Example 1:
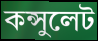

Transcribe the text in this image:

কন্সুলেট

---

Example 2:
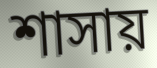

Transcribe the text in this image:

শাসায়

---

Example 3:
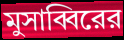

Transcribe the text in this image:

মুসাব্বিরের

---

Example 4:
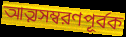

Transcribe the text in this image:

আত্মসম্বরণপূর্বক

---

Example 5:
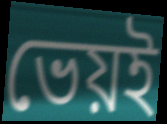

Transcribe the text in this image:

ভেয়ই